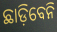
ଛାଡ଼ିବେନି